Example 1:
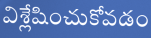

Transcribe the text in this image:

విశ్లేషించుకోవడం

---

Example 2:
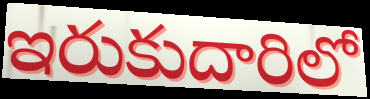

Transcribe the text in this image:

ఇరుకుదారిలో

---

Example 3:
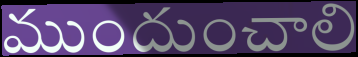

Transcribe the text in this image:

ముందుంచాలి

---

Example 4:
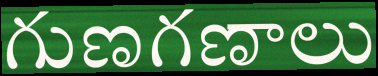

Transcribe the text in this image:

గుణగణాలు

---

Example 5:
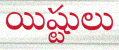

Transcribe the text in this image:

యిష్టులు